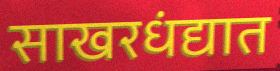
साखरधंद्यात